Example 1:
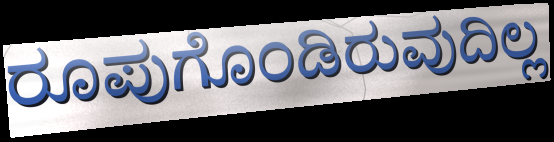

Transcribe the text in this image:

ರೂಪುಗೊಂಡಿರುವುದಿಲ್ಲ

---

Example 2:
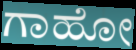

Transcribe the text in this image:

ಗಾಹೋ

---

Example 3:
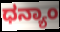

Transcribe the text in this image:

ಧನ್ಯಾಂ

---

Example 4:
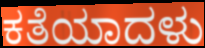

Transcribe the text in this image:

ಕತೆಯಾದಳು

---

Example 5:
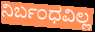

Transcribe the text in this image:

ನಿರ್ಬಂಧವಿಲ್ಲ